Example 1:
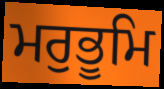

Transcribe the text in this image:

ਮਰੁਭੂਮਿ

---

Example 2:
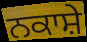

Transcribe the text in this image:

ਨਕਾਸ਼ੇ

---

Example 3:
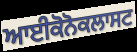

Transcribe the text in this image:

ਆਈਕੋਨੋਕਲਾਸਟ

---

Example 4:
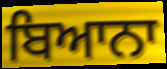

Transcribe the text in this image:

ਬਿਆਨਾ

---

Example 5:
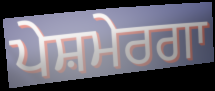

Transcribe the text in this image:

ਪੇਸ਼ਮੇਰਗਾ